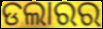
ଡଲାରର